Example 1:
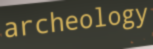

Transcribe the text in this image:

archeology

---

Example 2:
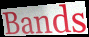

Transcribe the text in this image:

Bands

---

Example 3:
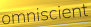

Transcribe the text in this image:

omniscient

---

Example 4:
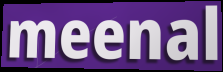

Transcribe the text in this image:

meenal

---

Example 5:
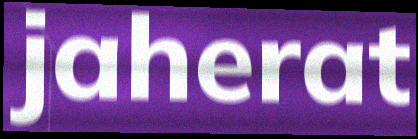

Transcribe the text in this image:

jaherat